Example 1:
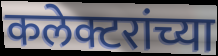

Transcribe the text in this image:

कलेक्टरांच्या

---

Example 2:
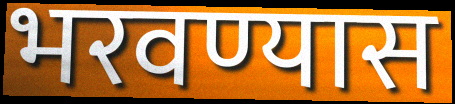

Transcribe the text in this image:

भरवण्यास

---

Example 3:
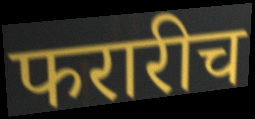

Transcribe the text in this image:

फरारीच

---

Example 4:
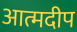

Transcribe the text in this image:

आत्मदीप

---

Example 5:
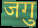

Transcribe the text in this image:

जगु